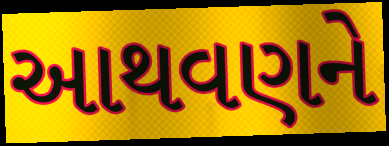
આથવણને